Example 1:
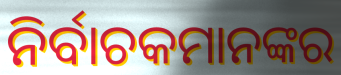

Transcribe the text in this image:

ନିର୍ବାଚକମାନଙ୍କର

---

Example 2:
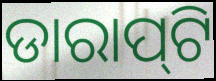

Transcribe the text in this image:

ଡାରାପ୍‌ଟି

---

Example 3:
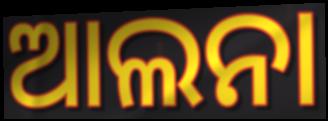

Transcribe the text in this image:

ଆଲନା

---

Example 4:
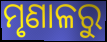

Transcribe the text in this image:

ମୃଣାଳରୁ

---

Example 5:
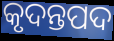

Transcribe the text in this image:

କୃଦନ୍ତପଦ